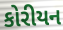
કોરીયન